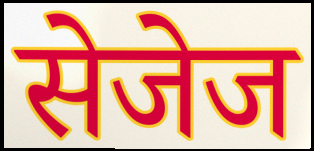
सेजेज